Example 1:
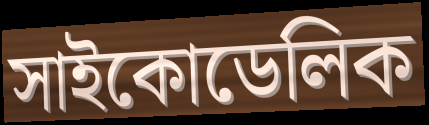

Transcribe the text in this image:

সাইকোডেলিক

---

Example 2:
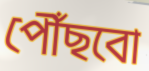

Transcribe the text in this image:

পৌঁছবো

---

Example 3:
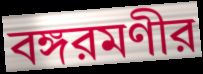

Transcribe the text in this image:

বঙ্গরমণীর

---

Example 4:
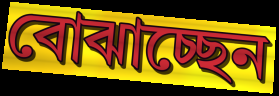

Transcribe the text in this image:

বোঝাচ্ছেন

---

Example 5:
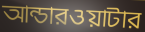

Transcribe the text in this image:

আন্ডারওয়াটার